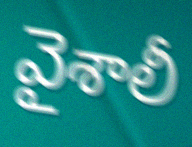
వైశాలీ